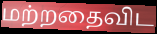
மற்றதைவிட